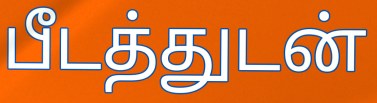
பீடத்துடன்